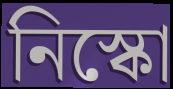
নিস্কো